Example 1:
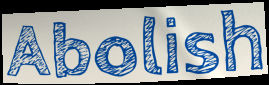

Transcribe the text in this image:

Abolish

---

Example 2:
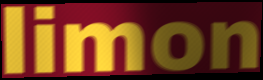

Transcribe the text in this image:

limon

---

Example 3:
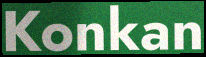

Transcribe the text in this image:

Konkan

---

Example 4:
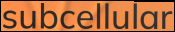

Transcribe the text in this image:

subcellular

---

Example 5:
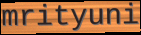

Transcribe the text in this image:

mrityuni